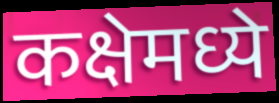
कक्षेमध्ये